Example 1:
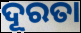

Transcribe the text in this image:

ଦୂରତା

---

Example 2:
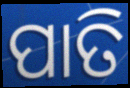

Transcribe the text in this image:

ପାତି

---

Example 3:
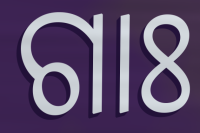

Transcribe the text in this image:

ଗାଃ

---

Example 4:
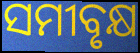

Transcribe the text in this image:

ସମୀବୃକ୍ଷ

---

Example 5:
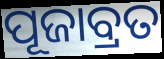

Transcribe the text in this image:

ପୂଜାବ୍ରତ